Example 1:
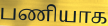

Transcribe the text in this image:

பணியாக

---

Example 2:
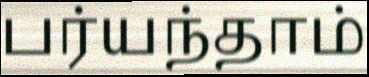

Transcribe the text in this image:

பர்யந்தாம்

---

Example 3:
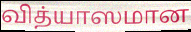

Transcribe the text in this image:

வித்யாஸமான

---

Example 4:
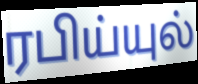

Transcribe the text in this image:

ரபிய்யுல்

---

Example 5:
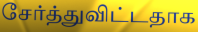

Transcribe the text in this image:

சேர்த்துவிட்டதாக